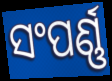
ସଂପର୍ଣ୍ଣ